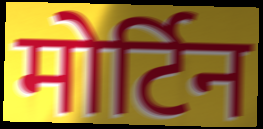
मोर्टिन